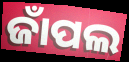
ଜାଁପଲ